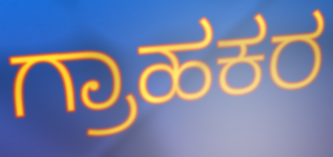
ಗ್ರಾಹಕರ